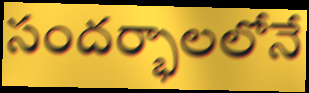
సందర్భాలలోనే